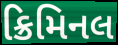
ક્રિમિનલ